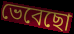
ভেবেছো